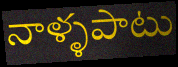
నాళ్ళపాటు